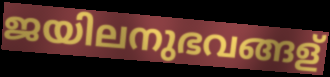
ജയിലനുഭവങ്ങള്